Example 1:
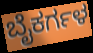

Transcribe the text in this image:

ಬೈಕರ್ಗಳ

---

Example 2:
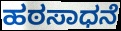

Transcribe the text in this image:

ಹಠಸಾಧನೆ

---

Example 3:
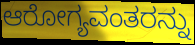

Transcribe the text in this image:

ಆರೋಗ್ಯವಂತರನ್ನು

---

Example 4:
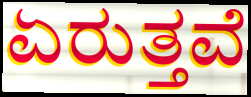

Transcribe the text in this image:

ಏರುತ್ತವೆ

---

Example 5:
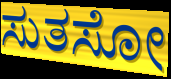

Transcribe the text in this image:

ಸುತಸೋ